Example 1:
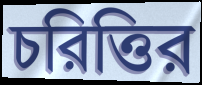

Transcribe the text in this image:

চরিত্তির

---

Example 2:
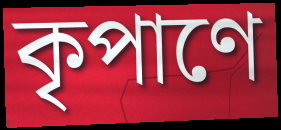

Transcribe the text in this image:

কৃপাণে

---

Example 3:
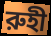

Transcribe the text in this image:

রুহী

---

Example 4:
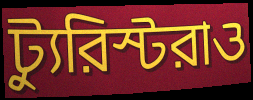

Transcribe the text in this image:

ট্যুরিস্টরাও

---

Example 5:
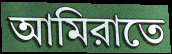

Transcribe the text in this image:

আমিরাতে